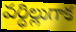
వర్ధిల్లుగాక